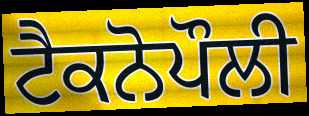
ਟੈਕਨੋਪੌਲੀ